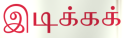
இடிக்கக்